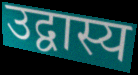
उद्वास्य